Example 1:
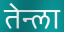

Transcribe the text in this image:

तेन्ला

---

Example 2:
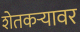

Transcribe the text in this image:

शेतकऱ्यावर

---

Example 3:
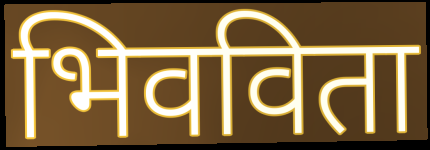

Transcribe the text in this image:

भिवविता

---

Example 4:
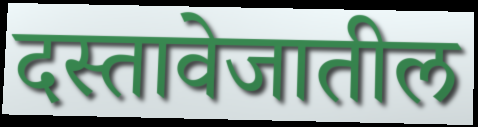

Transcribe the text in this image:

दस्तावेजातील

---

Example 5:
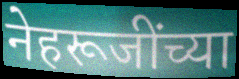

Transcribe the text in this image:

नेहरूजींच्या